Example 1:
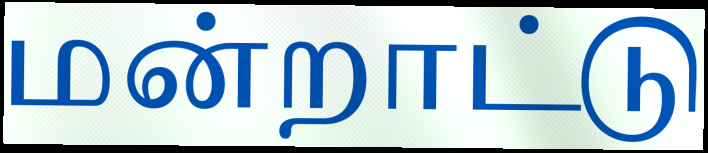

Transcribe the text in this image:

மன்றாட்டு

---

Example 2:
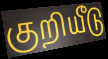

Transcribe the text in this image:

குறியீடு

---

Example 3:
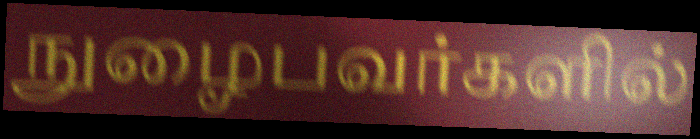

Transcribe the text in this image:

நுழைபவர்களில்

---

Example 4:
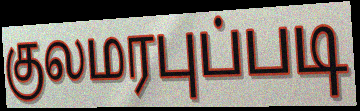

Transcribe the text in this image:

குலமரபுப்படி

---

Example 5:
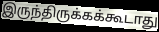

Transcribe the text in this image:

இருந்திருக்கக்கூடாது